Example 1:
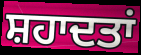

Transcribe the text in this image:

ਸ਼ਹਾਦਤਾਂ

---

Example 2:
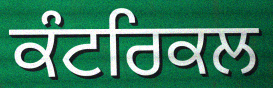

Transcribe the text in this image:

ਕੰਟਰਿਕਲ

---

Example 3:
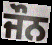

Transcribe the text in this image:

ਜੌਨ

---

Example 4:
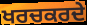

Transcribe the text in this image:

ਖਰਚਕਰਦੇ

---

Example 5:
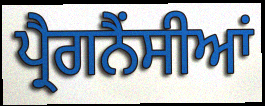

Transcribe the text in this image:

ਪ੍ਰੈਗਨੈਂਸੀਆਂ